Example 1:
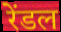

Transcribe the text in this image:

रेंडल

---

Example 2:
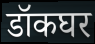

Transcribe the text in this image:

डॉकघर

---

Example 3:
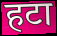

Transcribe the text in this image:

हटा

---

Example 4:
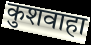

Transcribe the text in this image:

कुशवाहा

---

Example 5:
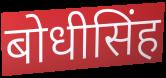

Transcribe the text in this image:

बोधीसिंह